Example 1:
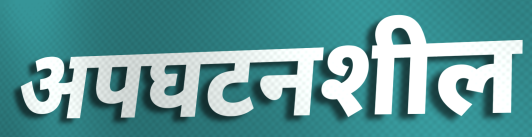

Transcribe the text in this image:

अपघटनशील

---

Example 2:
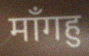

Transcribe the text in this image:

माँगहु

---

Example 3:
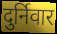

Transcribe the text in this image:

दुर्निवार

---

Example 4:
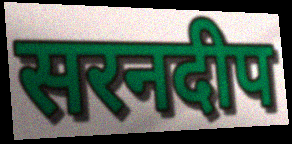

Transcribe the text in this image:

सरनदीप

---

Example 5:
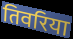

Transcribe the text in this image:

तिवरिया